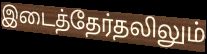
இடைத்தேர்தலிலும்